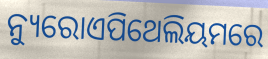
ନ୍ୟୁରୋଏପିଥେଲିୟମରେ